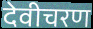
देवीचरण